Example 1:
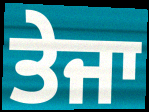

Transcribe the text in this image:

ਤੇਜਾ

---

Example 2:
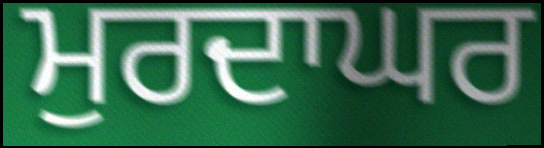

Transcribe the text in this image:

ਮੁਰਦਾਘਰ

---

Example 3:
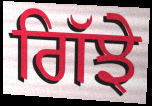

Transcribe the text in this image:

ਗਿੱਝੇ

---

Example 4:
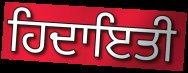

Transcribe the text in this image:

ਹਿਦਾਇਤੀ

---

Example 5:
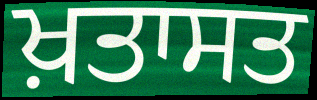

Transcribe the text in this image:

ਖ਼ਤਾਸਤ